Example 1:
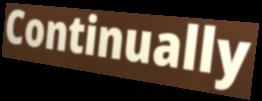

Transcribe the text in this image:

Continually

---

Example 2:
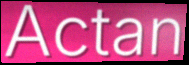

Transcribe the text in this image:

Actan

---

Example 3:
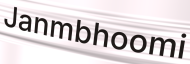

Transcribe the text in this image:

Janmbhoomi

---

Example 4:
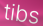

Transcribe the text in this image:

tibs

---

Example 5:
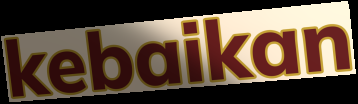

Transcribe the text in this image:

kebaikan